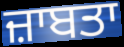
ਜ਼ਾਬਤਾ